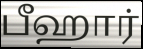
பீஹார்